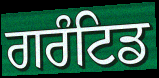
ਗਰੰਟਿਡ